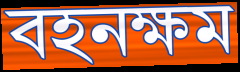
বহনক্ষম